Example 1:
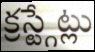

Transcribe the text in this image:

క్రస్ట్గేట్లు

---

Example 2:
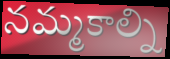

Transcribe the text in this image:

నమ్మకాల్ని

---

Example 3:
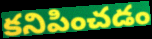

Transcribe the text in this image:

కనిపించడం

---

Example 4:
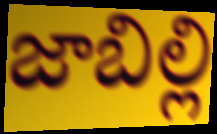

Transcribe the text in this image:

జాబిల్లి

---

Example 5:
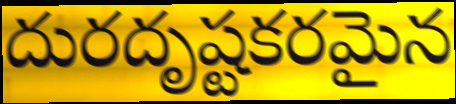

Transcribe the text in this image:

దురదృష్టకరమైన